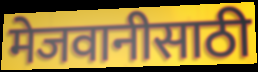
मेजवानीसाठी